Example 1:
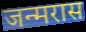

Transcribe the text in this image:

जन्मरास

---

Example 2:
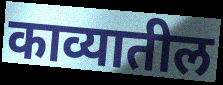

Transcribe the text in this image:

काव्यातील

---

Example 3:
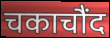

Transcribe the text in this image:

चकाचौंद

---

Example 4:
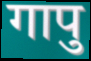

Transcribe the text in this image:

गापु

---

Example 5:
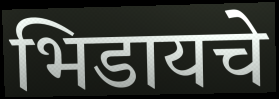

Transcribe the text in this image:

भिडायचे